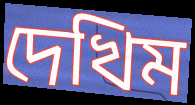
দেখিম